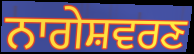
ਨਾਗੇਸ਼ਵਰਣ